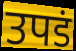
उपडं